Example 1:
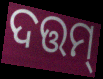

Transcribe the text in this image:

ଦତ୍ତମ୍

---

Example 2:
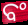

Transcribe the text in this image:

ବଂ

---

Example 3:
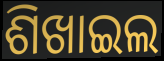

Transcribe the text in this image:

ଶିଖାଇଲ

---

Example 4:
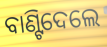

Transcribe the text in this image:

ବାଣ୍ଟିଦେଲେ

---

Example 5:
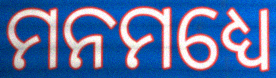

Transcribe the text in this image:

ମନମଧ୍ୟେ